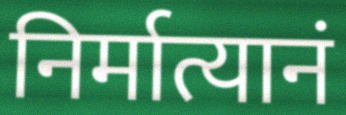
निर्मात्यानं